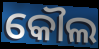
କୌଲ